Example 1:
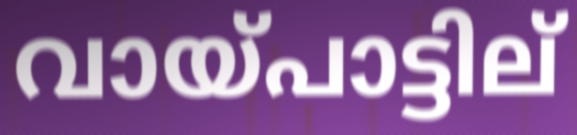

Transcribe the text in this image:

വായ്പാട്ടില്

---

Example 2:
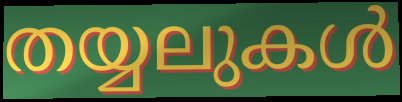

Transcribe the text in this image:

തയ്യലുകൾ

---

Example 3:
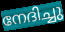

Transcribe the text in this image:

നേദിച്ചു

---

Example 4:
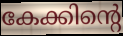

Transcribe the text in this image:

കേക്കിന്റെ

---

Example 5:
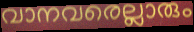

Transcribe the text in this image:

വാനവരെല്ലാരും